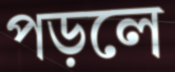
পড়লে